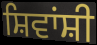
ਸ਼ਿਵਾਂਸ਼ੀ